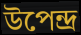
উপেন্দ্র